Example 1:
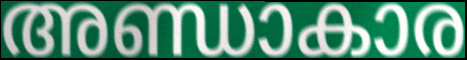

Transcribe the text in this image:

അണ്ഡാകാര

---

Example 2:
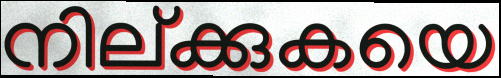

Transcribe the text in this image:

നില്ക്കുകയെ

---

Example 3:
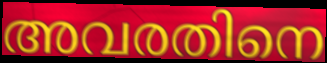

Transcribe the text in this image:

അവരതിനെ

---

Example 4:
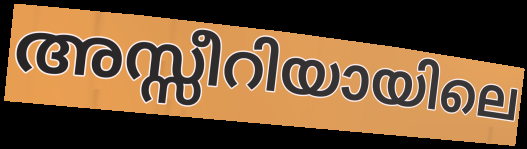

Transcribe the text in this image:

അസ്സീറിയായിലെ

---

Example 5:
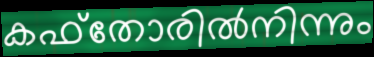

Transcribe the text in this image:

കഫ്തോരിൽനിന്നും